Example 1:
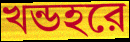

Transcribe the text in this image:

খন্ডহরে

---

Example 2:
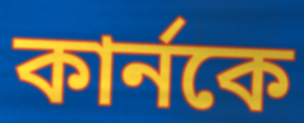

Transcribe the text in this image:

কার্নকে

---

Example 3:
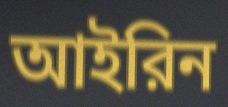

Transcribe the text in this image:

আইরিন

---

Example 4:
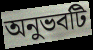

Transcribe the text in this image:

অনুভবটি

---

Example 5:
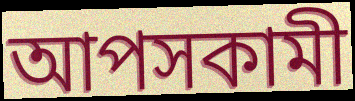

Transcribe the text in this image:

আপসকামী